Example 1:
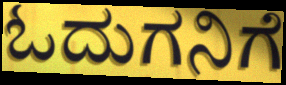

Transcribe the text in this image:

ಓದುಗನಿಗೆ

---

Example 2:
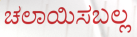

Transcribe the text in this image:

ಚಲಾಯಿಸಬಲ್ಲ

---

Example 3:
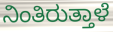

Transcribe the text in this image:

ನಿಂತಿರುತ್ತಾಳೆ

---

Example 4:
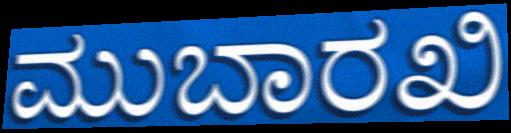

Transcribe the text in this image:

ಮುಬಾರಖಿ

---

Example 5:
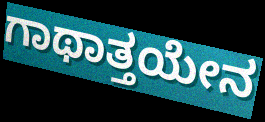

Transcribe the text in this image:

ಗಾಥಾತ್ತಯೇನ